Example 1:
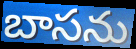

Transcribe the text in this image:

బాసను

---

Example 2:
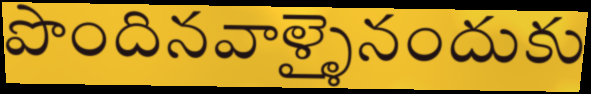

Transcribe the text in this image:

పొందినవాళ్ళైనందుకు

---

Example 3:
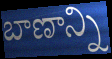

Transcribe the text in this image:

బాణాన్ని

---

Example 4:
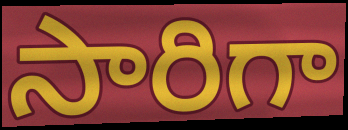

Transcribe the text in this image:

సారిగా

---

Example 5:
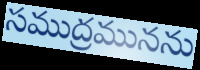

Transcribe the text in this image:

సముద్రమునను